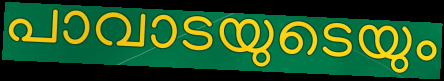
പാവാടയുടെയും